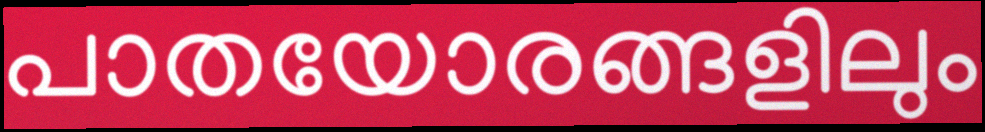
പാതയോരങ്ങളിലും